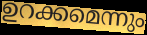
ഉറക്കമെന്നും